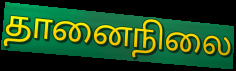
தானைநிலை